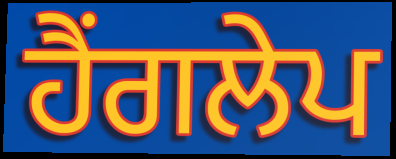
ਹੈਂਗਲੇਪ